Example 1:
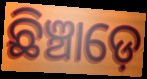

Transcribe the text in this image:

ଛିଞ୍ଚାଡ଼େ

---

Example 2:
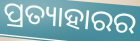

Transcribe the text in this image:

ପ୍ରତ୍ୟାହାରର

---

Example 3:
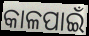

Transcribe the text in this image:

କାଳପାଇଁ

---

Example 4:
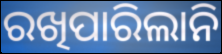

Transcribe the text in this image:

ରଖିପାରିଲାନି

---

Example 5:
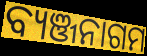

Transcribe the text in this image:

ବ୍ୟଞ୍ଜନାଗମ